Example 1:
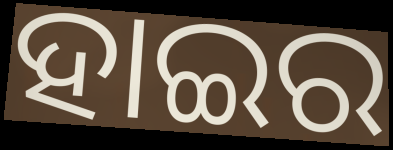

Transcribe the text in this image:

ହାଇର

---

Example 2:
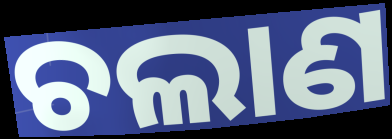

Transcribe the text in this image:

ଚଲାଣ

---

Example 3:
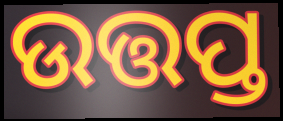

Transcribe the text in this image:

ଉତ୍ତପ୍ତ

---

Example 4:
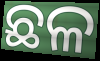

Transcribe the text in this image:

ଛଳ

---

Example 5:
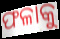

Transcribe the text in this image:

ଫଳାକୁ